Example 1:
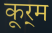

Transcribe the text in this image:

कूर्म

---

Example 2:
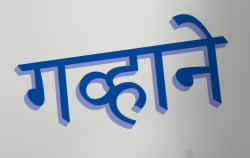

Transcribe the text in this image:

गव्हाने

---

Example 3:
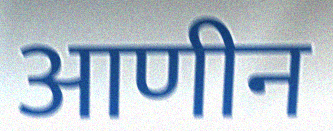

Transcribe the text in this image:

आणीन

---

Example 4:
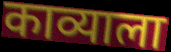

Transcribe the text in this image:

काव्याला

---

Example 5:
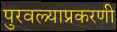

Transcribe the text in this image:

पुरवल्याप्रकरणी